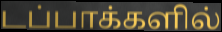
டப்பாக்களில்